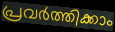
പ്രവർത്തിക്കാം